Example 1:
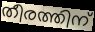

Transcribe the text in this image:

തീരത്തിന്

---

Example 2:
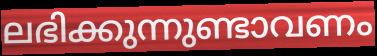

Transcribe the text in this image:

ലഭിക്കുന്നുണ്ടാവണം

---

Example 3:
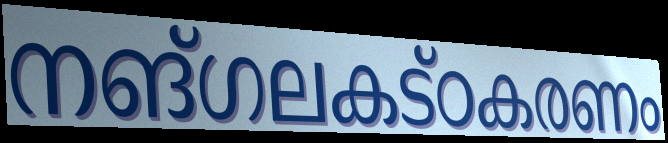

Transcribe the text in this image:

നങ്ഗലകട്ഠകരണം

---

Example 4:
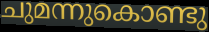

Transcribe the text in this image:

ചുമന്നുകൊണ്ടു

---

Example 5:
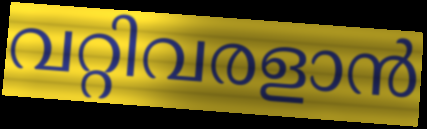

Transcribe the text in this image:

വറ്റിവരളാൻ